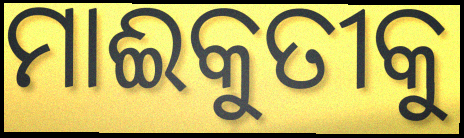
ମାଈକୁତୀକୁ